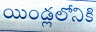
యిండ్లలోనికి